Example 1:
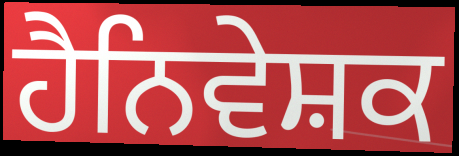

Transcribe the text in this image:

ਹੈਨਿਵੇਸ਼ਕ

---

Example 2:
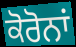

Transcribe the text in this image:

ਕੋਰੋਨਾਂ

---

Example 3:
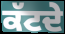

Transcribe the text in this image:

ਕੱਟਦੇ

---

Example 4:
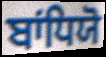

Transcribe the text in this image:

ਬਾਂਧਿਯੋ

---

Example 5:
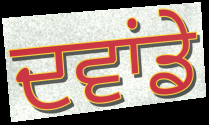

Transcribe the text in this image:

ਦਵਾਂਡੇ